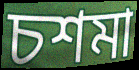
চশমা